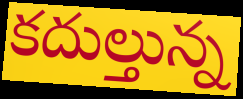
కదుల్తున్న